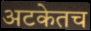
अटकेतच